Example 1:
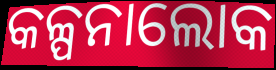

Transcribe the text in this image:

କଳ୍ପନାଲୋକ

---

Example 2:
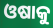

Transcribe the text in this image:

ଓଷାକୁ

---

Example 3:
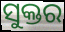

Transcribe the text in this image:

ସୁକ୍ତର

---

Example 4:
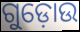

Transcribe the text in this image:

ଗୁଡ଼ୋଉ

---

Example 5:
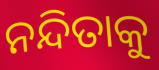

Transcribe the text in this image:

ନନ୍ଦିତାକୁ